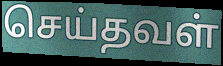
செய்தவள்